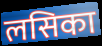
लसिका